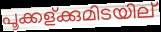
പൂക്കള്ക്കുമിടയില്